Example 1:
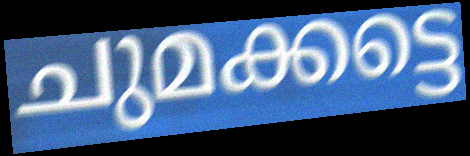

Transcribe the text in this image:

ചുമക്കട്ടെ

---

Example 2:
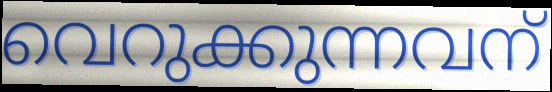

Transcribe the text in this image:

വെറുക്കുന്നവന്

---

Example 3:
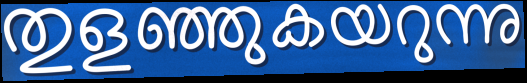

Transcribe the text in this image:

തുളഞ്ഞുകയറുന്നു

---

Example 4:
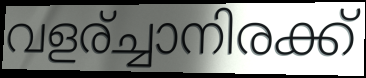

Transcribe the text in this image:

വളര്ച്ചാനിരക്ക്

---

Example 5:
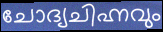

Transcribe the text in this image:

ചോദ്യചിഹ്നവും